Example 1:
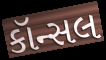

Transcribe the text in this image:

કૉન્સલ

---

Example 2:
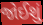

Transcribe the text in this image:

જોઈશું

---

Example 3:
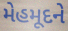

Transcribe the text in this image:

મેહમૂદને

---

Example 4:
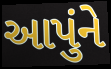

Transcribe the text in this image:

આપુંને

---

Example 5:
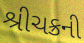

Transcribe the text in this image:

શ્રીચક્રની